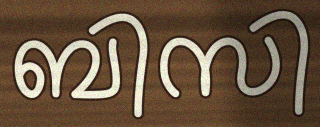
ബിസി